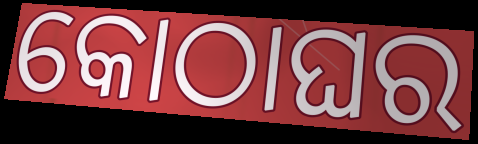
କୋଠାଘର